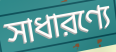
সাধারণ্যে